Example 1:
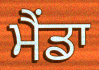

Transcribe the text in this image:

ਮੈਂਡਾ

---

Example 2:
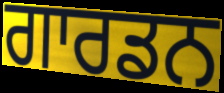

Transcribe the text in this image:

ਗਾਰਡਨ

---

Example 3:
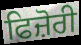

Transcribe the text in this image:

ਫਿਜ਼ੋਰੀ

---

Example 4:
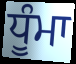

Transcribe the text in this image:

ਧੂੰਮਾ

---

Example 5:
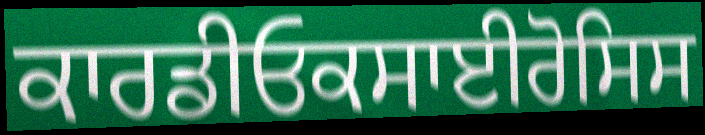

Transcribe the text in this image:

ਕਾਰਡੀਓਕਸਾਈਰੋਸਿਸ